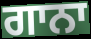
ਗਾਨਾ